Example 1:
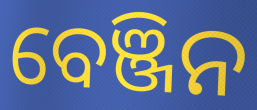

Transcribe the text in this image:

ବେଞ୍ଜିନ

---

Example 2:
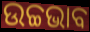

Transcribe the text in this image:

ଉଚ୍ଚଭାବ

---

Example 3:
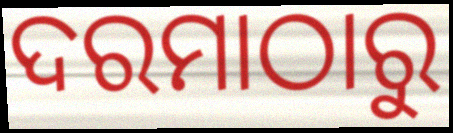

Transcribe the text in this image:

ଦରମାଠାରୁ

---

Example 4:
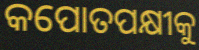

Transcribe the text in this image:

କପୋତପକ୍ଷୀକୁ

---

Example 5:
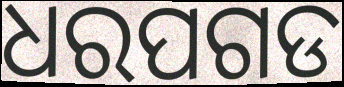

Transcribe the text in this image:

ଧରପଗଡ